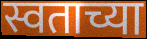
स्वताच्या